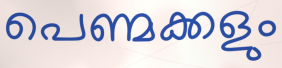
പെണ്മക്കളും